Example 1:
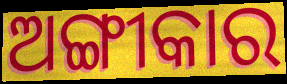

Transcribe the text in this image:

ଅଙ୍ଗୀକାର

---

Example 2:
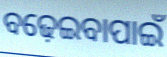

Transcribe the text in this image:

ବଢ଼େଇବାପାଇଁ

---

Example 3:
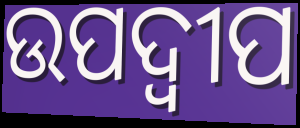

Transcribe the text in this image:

ଉପଦ୍ବୀପ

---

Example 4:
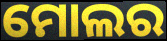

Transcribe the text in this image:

ମୋଲର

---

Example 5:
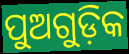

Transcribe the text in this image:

ପୁଅଗୁଡ଼ିକ